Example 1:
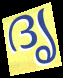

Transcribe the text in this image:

ദൃ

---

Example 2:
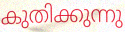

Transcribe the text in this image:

കുതിക്കുന്നു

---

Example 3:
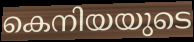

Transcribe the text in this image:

കെനിയയുടെ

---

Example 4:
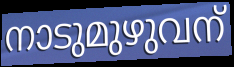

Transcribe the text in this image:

നാടുമുഴുവന്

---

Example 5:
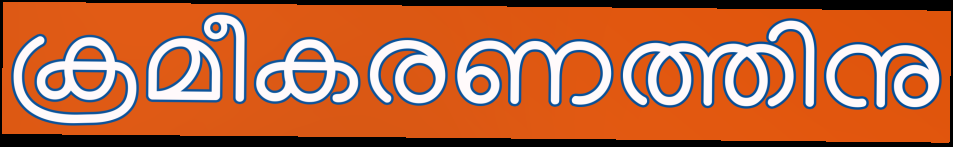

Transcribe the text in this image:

ക്രമീകരണത്തിനു